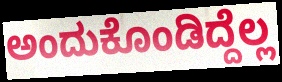
ಅಂದುಕೊಂಡಿದ್ದೆಲ್ಲ